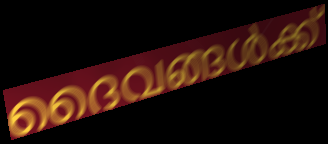
ദൈവങ്ങൾക്ക്